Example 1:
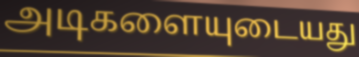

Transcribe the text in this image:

அடிகளையுடையது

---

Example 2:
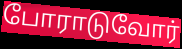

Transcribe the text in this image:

போராடுவோர்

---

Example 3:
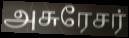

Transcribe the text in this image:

அசுரேசர்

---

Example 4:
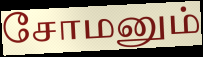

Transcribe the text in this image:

சோமனும்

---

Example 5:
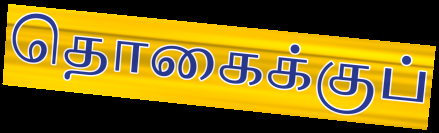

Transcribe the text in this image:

தொகைக்குப்